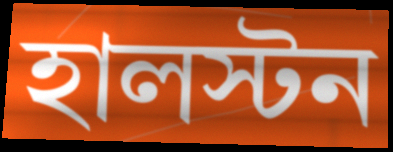
হালস্টন